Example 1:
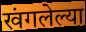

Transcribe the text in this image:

खंगलेल्या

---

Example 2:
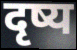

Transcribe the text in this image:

दृष्य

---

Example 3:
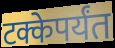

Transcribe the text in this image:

टक्केपर्यंत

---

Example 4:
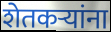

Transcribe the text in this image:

शेतकऱ्यांना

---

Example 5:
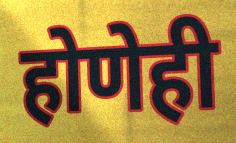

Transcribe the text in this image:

होणेही